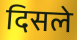
दिसले